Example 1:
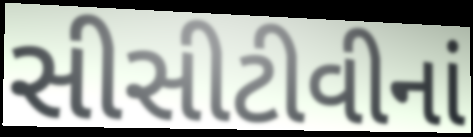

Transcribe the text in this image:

સીસીટીવીનાં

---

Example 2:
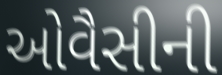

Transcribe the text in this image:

ઓવૈસીની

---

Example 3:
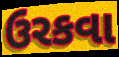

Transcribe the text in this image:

ઉરકવા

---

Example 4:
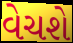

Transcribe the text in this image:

વેચશે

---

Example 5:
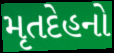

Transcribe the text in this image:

મૃતદેહનો